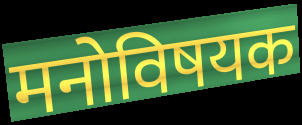
मनोविषयक